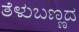
ತೆಳುಬಣ್ಣದ